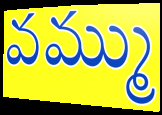
వమ్ము